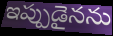
ఇప్పుడైనను